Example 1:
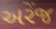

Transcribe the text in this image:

અરેંજ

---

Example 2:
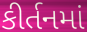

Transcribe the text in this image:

કીર્તનમાં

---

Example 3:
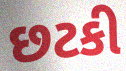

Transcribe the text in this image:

છટકી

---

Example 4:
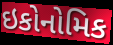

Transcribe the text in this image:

ઇકોનોમિક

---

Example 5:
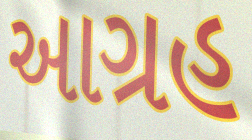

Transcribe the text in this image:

આગ્રહ